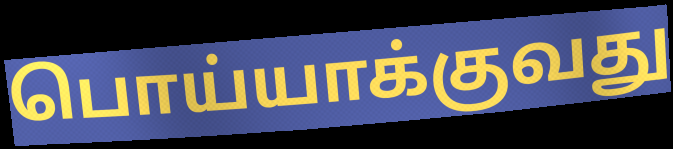
பொய்யாக்குவது